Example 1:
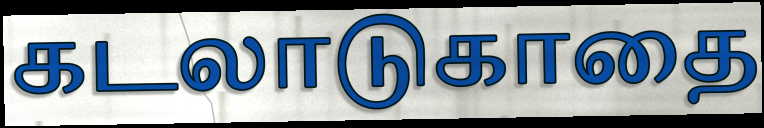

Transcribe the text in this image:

கடலாடுகாதை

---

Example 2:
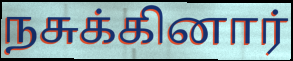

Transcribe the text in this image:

நசுக்கினார்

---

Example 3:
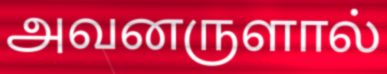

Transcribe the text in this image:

அவனருளால்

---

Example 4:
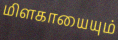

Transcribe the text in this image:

மிளகாயையும்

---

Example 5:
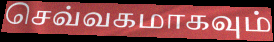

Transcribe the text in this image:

செவ்வகமாகவும்